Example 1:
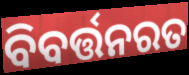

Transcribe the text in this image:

ବିବର୍ତ୍ତନରତ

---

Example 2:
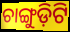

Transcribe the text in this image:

ଚାଙ୍ଗୁଡ଼ିଟି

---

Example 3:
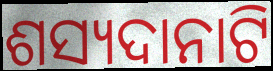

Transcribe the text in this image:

ଶସ୍ୟଦାନାଟି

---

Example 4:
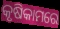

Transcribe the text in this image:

କୃଷିକାମରେ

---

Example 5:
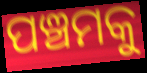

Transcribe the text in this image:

ପଞ୍ଚମକୁ